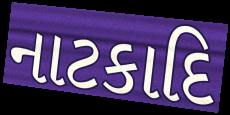
નાટકાદિ